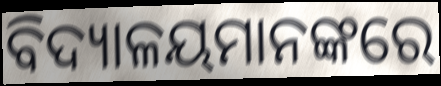
ବିଦ୍ୟାଳୟମାନଙ୍କରେ